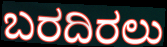
ಬರದಿರಲು